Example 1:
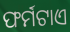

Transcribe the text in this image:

ଫର୍ମଟାଏ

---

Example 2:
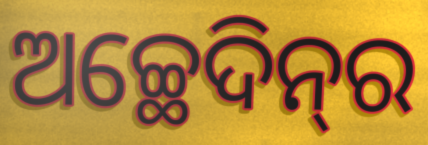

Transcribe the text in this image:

ଅଚ୍ଛେଦିନ୍‌ର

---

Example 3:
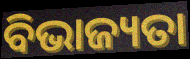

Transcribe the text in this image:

ବିଭାଜ୍ୟତା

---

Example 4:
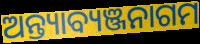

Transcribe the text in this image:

ଅନ୍ତ୍ୟାବ୍ୟଞ୍ଜନାଗମ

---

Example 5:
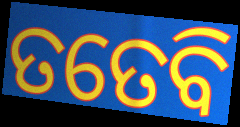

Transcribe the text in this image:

ତତେବି